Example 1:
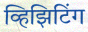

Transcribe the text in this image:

व्हिझिटिंग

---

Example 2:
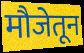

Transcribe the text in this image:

मौजेतून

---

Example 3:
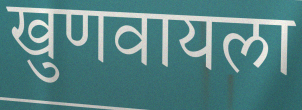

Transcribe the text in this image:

खुणवायला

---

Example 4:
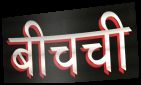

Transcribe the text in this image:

बीचची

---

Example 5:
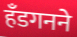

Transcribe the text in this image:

हँडगनने